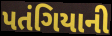
પતંગિયાની